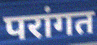
परांगत